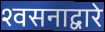
श्वसनाद्वारे